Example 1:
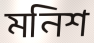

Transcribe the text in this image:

মনিশ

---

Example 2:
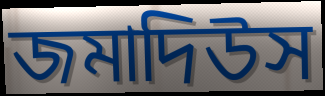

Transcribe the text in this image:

জমাদিউস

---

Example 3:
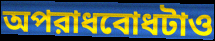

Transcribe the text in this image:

অপরাধবোধটাও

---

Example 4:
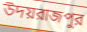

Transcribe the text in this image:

উদয়রাজপুর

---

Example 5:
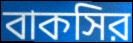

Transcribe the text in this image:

বাকসির